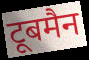
टूबमैन